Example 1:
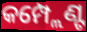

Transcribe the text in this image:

କମ୍ପ୍ଲେଣ୍ଟ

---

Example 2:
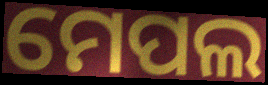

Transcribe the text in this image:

ମେପଲ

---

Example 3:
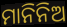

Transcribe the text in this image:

ମାନିନିଅ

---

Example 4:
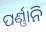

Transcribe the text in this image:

ପର୍ଣ୍ଣାନି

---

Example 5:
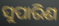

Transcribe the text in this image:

ସୁପାରିଣ